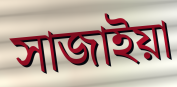
সাজাইয়া